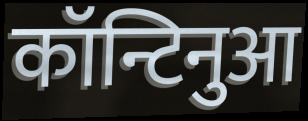
कॉन्टिनुआ